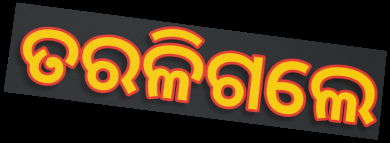
ତରଳିଗଲେ